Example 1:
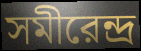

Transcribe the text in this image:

সমীরেন্দ্র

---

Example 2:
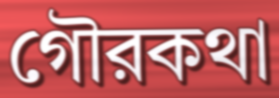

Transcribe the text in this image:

গৌরকথা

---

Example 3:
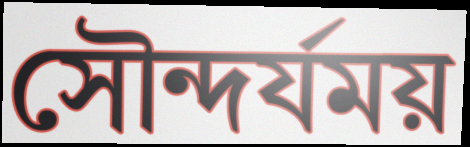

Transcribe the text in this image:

সৌন্দর্যময়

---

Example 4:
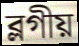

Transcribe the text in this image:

ব্লগীয়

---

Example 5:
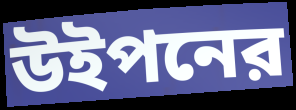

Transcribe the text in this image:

উইপনের